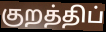
குறத்திப்